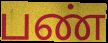
பண்